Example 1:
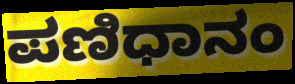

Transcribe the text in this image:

ಪಣಿಧಾನಂ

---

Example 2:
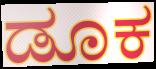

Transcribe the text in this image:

ಡೂಕ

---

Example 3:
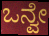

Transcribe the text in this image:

ಒನ್ವೇ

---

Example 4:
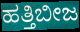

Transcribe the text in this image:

ಹತ್ತಿಬೀಜ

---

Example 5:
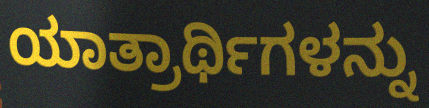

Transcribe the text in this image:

ಯಾತ್ರಾರ್ಥಿಗಳನ್ನು